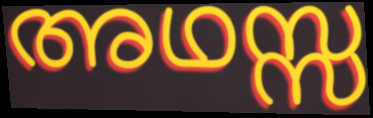
അഥസ്സ